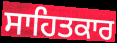
ਸਾਹਿਤਕਾਰ